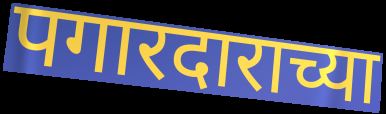
पगारदाराच्या